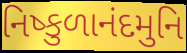
નિષ્કુળાનંદમુનિ